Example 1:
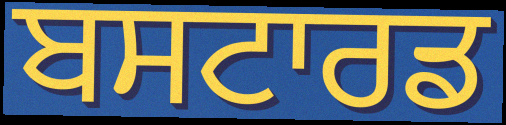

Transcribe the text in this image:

ਬਸਟਾਰਡ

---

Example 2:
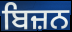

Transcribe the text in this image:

ਬਿਜ਼ਨ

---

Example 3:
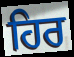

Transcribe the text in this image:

ਹਿਰ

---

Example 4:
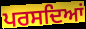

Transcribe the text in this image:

ਪਰਸਦਿਆਂ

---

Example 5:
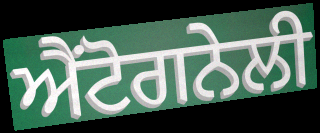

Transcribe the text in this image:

ਐਂਟੋਗਨੇਲੀ